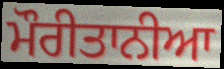
ਮੌਰੀਤਾਨੀਆ